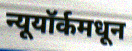
न्यूयॉर्कमधून